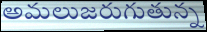
అమలుజరుగుతున్న